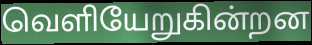
வெளியேறுகின்றன